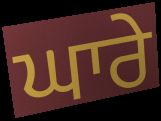
ਘਾਰੇ